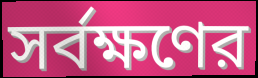
সর্বক্ষণের